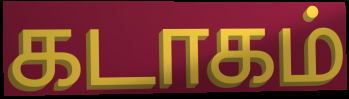
கடாகம்